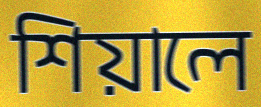
শিয়ালে